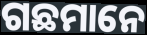
ଗଛମାନେ